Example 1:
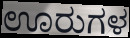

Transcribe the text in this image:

ಊರುಗಳ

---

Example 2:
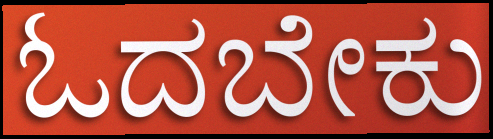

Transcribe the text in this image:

ಓದಬೇಕು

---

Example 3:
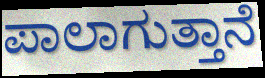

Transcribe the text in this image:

ಪಾಲಾಗುತ್ತಾನೆ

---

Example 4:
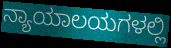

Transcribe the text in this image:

ನ್ಯಾಯಾಲಯಗಳಲ್ಲಿ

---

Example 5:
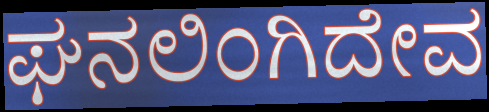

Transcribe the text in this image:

ಘನಲಿಂಗಿದೇವ